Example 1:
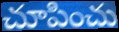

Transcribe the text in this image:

చూపించు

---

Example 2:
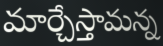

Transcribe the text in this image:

మార్చేస్తామన్న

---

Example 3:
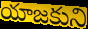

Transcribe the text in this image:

యాజకుని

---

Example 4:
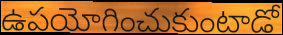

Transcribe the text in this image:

ఉపయోగించుకుంటాడో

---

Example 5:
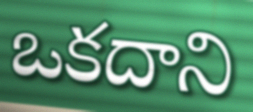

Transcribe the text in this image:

ఒకదాని